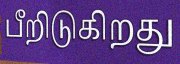
பீறிடுகிறது